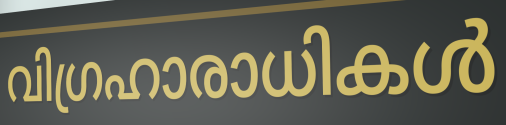
വിഗ്രഹാരാധികൾ